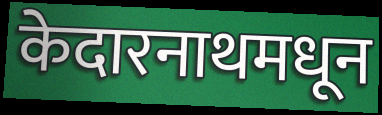
केदारनाथमधून